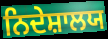
ਨਿਦੇਸ਼ਾਲਯ